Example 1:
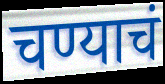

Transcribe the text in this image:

चण्याचं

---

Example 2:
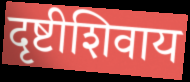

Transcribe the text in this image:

दृष्टीशिवाय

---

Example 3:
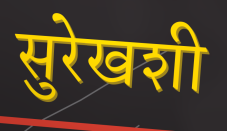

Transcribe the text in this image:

सुरेखशी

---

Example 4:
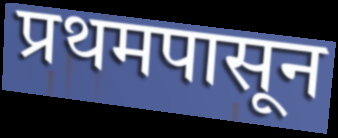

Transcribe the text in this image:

प्रथमपासून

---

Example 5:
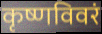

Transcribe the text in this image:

कृष्णविवरं